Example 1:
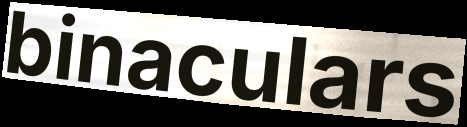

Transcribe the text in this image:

binaculars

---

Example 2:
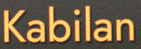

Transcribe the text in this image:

Kabilan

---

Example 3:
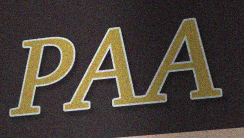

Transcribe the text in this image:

PAA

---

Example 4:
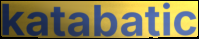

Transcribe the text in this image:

katabatic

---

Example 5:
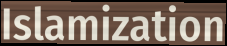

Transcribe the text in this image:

Islamization